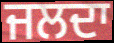
ਜਲਦਾ